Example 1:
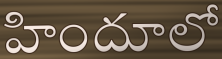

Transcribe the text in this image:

హిందూలో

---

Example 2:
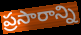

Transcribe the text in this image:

ప్రసారాన్ని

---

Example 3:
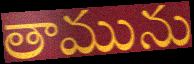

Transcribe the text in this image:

తామును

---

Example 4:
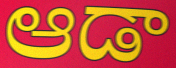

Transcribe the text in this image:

ఆడా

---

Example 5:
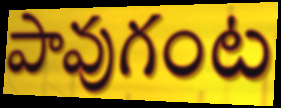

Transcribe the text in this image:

పావుగంట